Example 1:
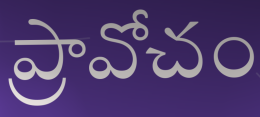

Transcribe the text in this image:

ప్రావోచం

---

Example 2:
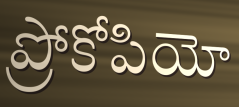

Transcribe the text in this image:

ప్రోకోపియో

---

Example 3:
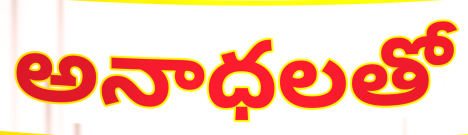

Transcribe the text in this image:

అనాధలతో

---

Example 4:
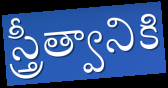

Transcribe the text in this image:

స్త్రీత్వానికి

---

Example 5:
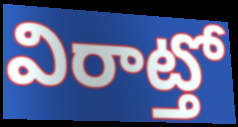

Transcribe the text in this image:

విరాట్తో